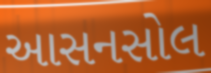
આસનસોલ